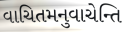
વાચિતમનુવાચેન્તિ